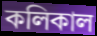
কলিকাল